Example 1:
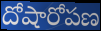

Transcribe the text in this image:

దోషారోపణ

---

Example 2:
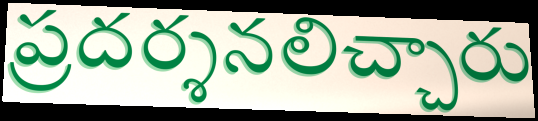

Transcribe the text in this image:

ప్రదర్శనలిచ్చారు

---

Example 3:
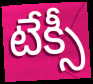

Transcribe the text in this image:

టేక్సీ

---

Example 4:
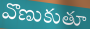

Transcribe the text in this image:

వొణుకుతూ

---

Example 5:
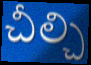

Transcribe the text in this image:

చీల్చి